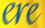
ere